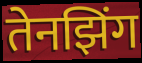
तेनझिंग